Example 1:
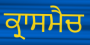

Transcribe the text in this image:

ਕ੍ਰਾਸਮੈਚ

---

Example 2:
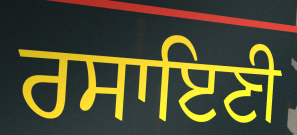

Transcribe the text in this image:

ਰਸਾਇਣੀ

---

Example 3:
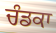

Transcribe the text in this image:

ਚੰਡਕਾ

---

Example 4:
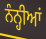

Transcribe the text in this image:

ਨੰਨ੍ਹੀਆਂ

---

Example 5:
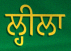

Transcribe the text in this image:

ਲ੍ਹੀਲਾ